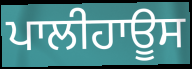
ਪਾਲੀਹਾਊਸ